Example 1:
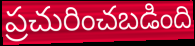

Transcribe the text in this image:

ప్రచురించబడింది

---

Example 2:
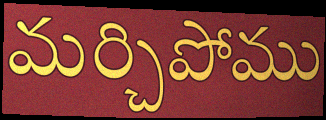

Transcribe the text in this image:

మర్చిపోము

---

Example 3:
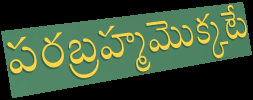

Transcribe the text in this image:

పరబ్రహ్మమొక్కటే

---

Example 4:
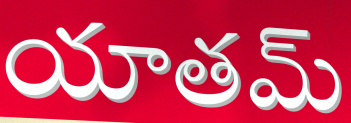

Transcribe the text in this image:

యాతమ్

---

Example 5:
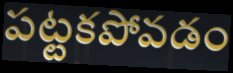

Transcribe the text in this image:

పట్టకపోవడం